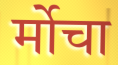
र्मोचा